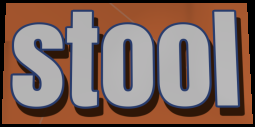
stool